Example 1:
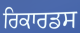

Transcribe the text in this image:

ਰਿਕਾਰਡਸ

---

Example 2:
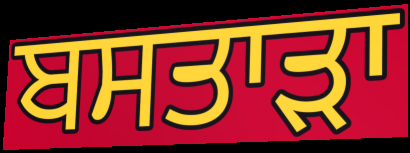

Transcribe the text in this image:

ਬਸਤਾੜਾ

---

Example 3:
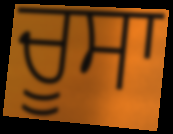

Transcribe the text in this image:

ਚੂਸਾ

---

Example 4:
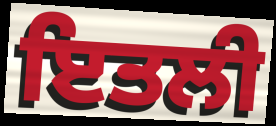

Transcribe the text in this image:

ਇਤਲੀ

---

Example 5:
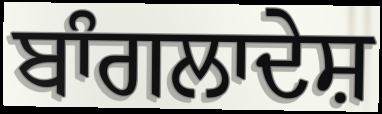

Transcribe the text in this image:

ਬਾੰਗਲਾਦੇਸ਼